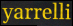
yarrelli